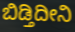
ಬಿಡ್ತಿದೀನಿ